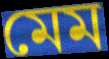
মেম